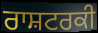
ਰਾਸ਼ਟਰਕੀ